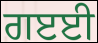
ਗੲਈ